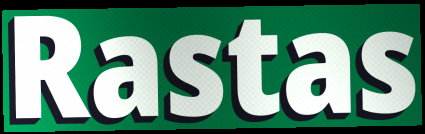
Rastas